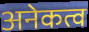
अनेकत्व